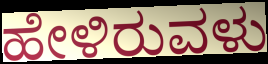
ಹೇಳಿರುವಳು